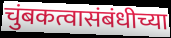
चुंबकत्वासंबंधीच्या